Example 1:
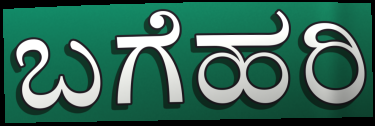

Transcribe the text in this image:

ಬಗೆಹರಿ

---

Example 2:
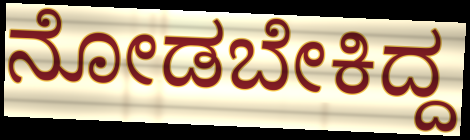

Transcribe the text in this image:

ನೋಡಬೇಕಿದ್ದ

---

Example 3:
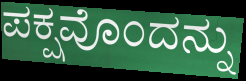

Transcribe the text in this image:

ಪಕ್ಷವೊಂದನ್ನು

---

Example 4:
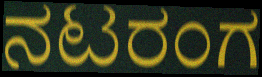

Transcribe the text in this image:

ನಟರಂಗ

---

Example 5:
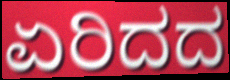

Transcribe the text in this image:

ಏರಿದದ